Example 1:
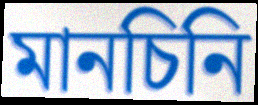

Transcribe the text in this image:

মানচিনি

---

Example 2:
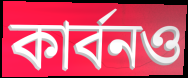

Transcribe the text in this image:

কার্বনও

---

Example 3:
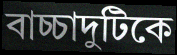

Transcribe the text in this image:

বাচ্চাদুটিকে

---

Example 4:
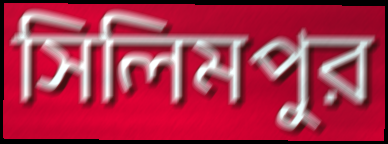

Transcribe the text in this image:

সিলিমপুর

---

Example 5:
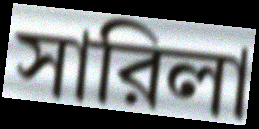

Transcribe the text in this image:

সারিলা